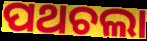
ପଥଚଲା